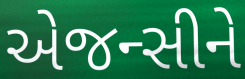
એજન્સીને